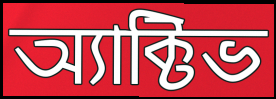
অ্যাক্টিভ